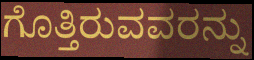
ಗೊತ್ತಿರುವವರನ್ನು